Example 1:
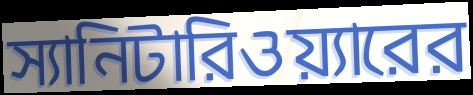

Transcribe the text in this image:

স্যানিটারিওয়্যারের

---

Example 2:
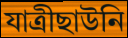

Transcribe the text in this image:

যাত্রীছাউনি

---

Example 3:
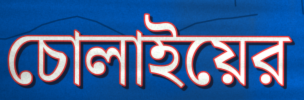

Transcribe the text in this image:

চোলাইয়ের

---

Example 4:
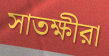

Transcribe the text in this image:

সাতক্ষীরা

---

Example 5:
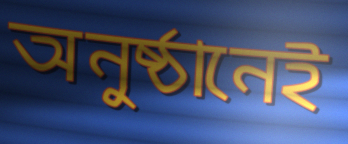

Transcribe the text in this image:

অনুষ্ঠানেই